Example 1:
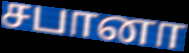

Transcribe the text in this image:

சபானா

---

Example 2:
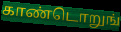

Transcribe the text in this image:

காண்டொறுங்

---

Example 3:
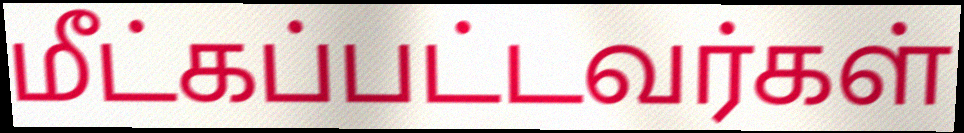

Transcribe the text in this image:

மீட்கப்பட்டவர்கள்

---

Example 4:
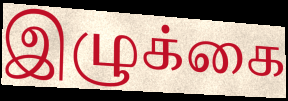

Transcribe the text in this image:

இழுக்கை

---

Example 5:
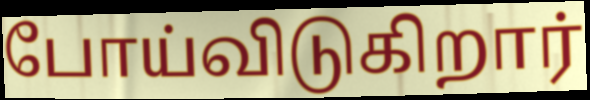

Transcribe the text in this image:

போய்விடுகிறார்